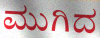
ಮುಗಿದ